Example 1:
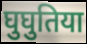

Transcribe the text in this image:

घुघुतिया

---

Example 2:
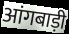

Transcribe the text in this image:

आंगबाड़ी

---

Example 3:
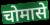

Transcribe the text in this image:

चोमासे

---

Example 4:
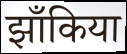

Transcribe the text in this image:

झाँकिया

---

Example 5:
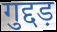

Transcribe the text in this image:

गुद्दड़